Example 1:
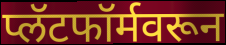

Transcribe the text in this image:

प्लॅटफॉर्मवरून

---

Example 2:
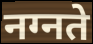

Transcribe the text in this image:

नग्नते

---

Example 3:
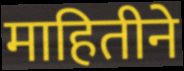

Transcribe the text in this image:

माहितीने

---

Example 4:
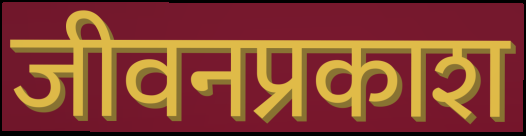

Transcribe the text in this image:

जीवनप्रकाश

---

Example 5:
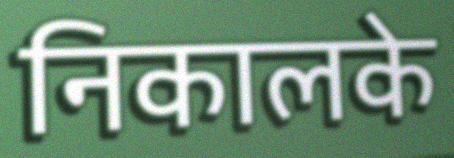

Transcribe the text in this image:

निकालके